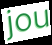
jou